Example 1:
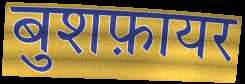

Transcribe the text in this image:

बुशफ़ायर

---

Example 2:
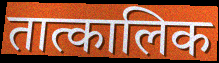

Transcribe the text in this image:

तात्कालिक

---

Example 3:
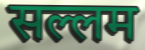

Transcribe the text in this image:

सल्‍लम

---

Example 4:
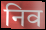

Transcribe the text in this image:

निव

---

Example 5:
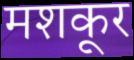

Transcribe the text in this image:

मशकूर